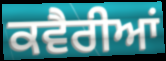
ਕਵੈਰੀਆਂ